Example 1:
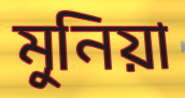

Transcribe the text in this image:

মুনিয়া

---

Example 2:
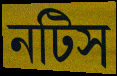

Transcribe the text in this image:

নটিস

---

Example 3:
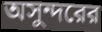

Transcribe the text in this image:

অসুন্দরের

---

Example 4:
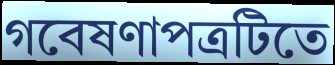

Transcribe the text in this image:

গবেষণাপত্রটিতে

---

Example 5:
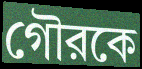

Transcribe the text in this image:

গৌরকে